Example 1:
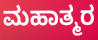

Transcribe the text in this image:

ಮಹಾತ್ಮರ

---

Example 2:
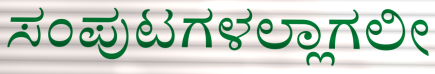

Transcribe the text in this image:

ಸಂಪುಟಗಳಲ್ಲಾಗಲೀ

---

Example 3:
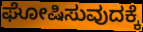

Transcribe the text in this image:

ಘೋಷಿಸುವುದಕ್ಕೆ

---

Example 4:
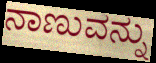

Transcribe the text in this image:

ನಾಣುವನ್ನು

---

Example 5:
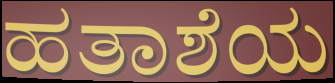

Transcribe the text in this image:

ಹತಾಶೆಯ